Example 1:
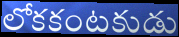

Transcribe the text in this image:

లోకకంటకుడు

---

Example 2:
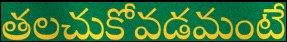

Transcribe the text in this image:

తలచుకోవడమంటే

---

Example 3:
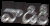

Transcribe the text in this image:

వాడికీ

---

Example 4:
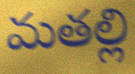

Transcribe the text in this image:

మతల్లి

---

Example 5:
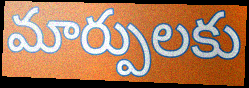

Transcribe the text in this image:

మార్పులకు